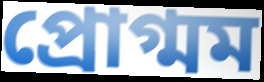
প্রোগ্মম